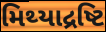
મિથ્યાદ્રષ્ટિ